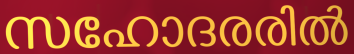
സഹോദരരിൽ